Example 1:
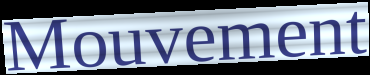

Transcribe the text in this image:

Mouvement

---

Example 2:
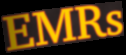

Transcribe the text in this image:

EMRs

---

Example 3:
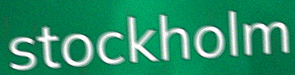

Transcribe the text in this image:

stockholm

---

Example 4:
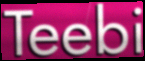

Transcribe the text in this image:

Teebi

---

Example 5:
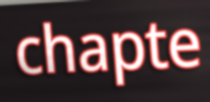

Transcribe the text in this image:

chapte